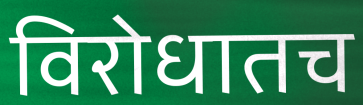
विरोधातच